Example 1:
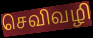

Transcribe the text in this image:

செவிவழி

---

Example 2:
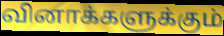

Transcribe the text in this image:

வினாக்களுக்கும்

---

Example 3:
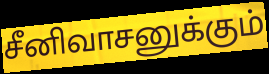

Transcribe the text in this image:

சீனிவாசனுக்கும்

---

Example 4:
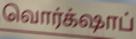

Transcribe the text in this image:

வொர்க்‌ஷாப்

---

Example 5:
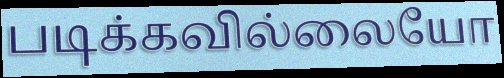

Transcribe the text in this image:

படிக்கவில்லையோ